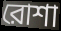
রোশা